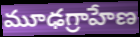
మూఢగ్రాహేణ